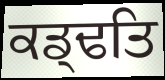
ਕਡ੍ਢਤਿ